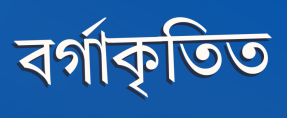
বৰ্গাকৃতিত